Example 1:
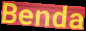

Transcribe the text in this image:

Benda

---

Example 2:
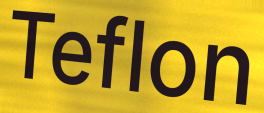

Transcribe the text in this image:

Teflon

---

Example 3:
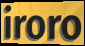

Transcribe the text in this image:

iroro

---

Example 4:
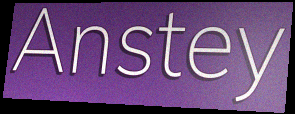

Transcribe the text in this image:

Anstey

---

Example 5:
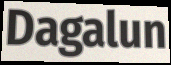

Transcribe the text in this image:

Dagalun